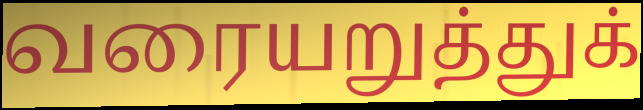
வரையறுத்துக்